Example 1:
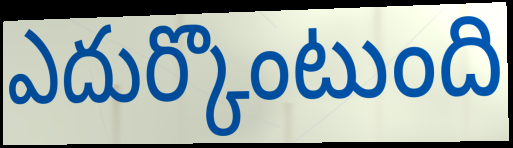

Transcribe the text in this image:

ఎదుర్కొంటుంది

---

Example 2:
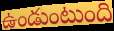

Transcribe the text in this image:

ఉండుంటుంది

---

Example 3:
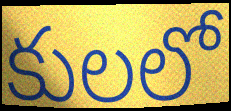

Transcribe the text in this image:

కులలో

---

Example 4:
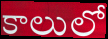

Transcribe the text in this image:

కాలులో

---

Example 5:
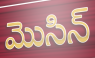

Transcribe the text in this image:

మొసిన్